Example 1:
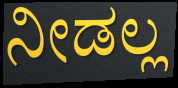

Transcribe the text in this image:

ನೀಡಲ್ಲ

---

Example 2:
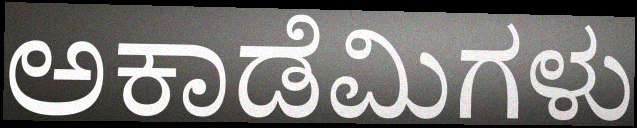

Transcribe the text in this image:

ಅಕಾಡೆಮಿಗಳು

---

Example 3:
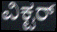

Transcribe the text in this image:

ವಿಕ್ಟರ್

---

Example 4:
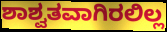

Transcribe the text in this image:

ಶಾಶ್ವತವಾಗಿರಲಿಲ್ಲ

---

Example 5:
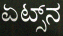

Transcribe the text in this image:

ಏಟ್ಸ್‌ನ